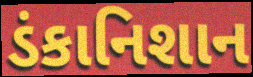
ડંકાનિશાન